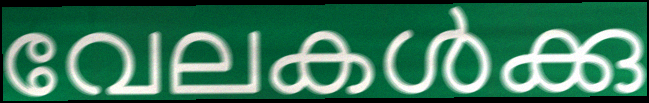
വേലകൾക്കു